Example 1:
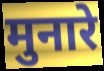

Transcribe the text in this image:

मुनारे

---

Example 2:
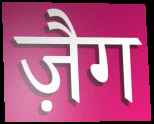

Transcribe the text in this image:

ज़ैग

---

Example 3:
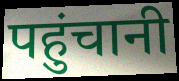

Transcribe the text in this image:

पहुंचानी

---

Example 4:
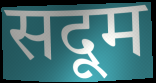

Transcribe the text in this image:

सदूम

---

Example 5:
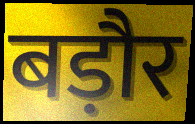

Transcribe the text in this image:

बड़ौर